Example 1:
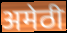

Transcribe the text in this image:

अमेठी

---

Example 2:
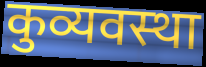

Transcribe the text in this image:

कुव्यवस्था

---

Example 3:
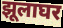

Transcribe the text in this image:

झूलाघर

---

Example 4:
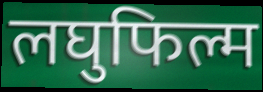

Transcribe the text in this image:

लघुफिल्म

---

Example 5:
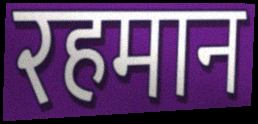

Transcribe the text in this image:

रहमान